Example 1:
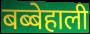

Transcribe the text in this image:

बब्बेहाली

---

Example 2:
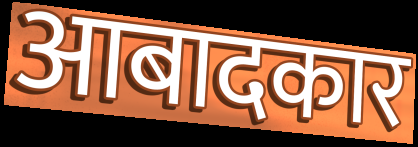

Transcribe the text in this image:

आबादकार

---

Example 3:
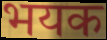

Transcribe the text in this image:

भयक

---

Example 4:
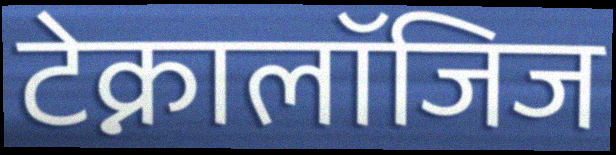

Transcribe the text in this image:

टेक्नालॉजिज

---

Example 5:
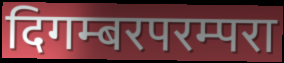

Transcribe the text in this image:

दिगम्बरपरम्परा